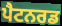
ਪੈਟਨਰਡ